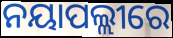
ନୟାପଲ୍ଲୀରେ